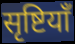
सृष्टियाँ